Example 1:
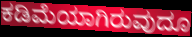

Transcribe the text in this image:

ಕಡಿಮೆಯಾಗಿರುವುದೂ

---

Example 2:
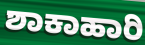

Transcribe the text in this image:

ಶಾಕಾಹಾರಿ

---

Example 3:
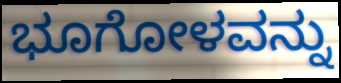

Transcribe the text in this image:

ಭೂಗೋಳವನ್ನು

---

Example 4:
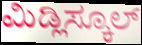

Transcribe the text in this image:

ಮಿಡ್ಲಿಸ್ಕೂಲ್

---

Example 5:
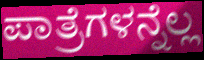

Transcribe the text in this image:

ಪಾತ್ರೆಗಳನ್ನೆಲ್ಲ